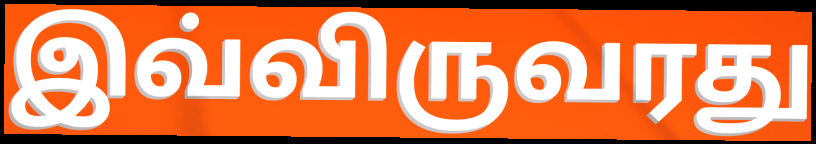
இவ்விருவரது